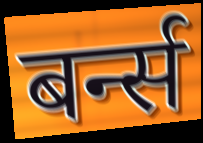
बर्न्स